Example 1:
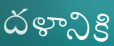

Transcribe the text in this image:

దళానికి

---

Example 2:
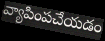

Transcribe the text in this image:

వ్యాపింపచేయడం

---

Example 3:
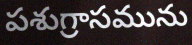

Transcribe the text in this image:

పశుగ్రాసమును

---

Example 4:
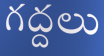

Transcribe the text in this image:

గద్దలు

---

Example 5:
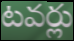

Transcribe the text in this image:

టవర్లు